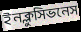
ইনক্লুসিভনেস